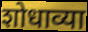
शोधाव्या